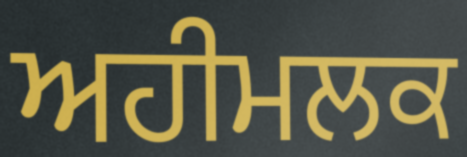
ਅਹੀਮਲਕ